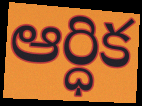
ఆర్ధిక